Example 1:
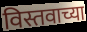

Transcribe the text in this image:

विस्तवाच्या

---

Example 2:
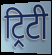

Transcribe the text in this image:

ट्रिटी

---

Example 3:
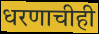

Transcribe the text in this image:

धरणाचीही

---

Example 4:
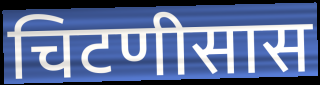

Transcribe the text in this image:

चिटणीसास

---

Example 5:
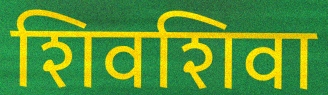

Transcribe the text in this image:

शिवशिवा